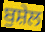
ਬੁਸ਼ੇਲ